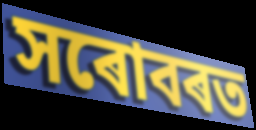
সৰোবৰত